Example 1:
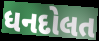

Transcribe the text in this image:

ધનદોલત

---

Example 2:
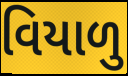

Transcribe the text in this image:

વિયાળુ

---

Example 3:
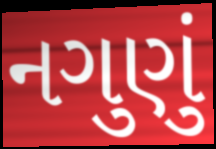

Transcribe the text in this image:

નગુણું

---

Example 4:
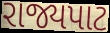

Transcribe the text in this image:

રાજ્યપાટ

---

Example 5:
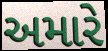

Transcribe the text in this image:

અમારે